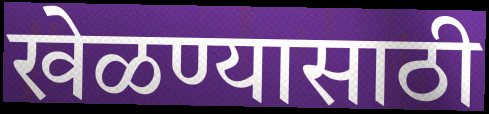
खेळण्यासाठी